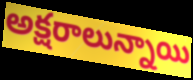
అక్షరాలున్నాయి